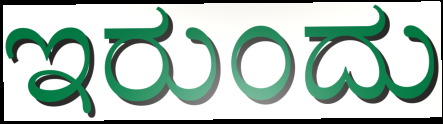
ಇರುಂದು